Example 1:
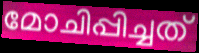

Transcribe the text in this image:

മോചിപ്പിച്ചത്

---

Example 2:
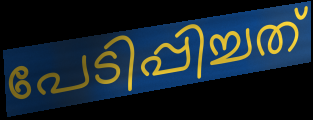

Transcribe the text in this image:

പേടിപ്പിച്ചത്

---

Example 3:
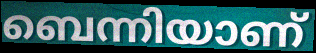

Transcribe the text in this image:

ബെന്നിയാണ്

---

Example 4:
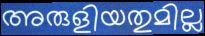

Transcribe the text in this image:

അരുളിയതുമില്ല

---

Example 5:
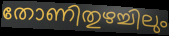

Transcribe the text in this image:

തോണിതുഴച്ചിലും